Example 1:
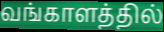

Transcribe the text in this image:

வங்காளத்தில்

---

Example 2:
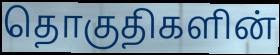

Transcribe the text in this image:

தொகுதிகளின்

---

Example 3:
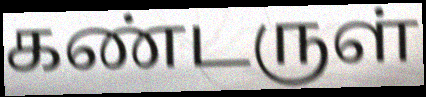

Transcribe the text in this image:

கண்டருள்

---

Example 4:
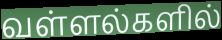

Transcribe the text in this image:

வள்ளல்களில்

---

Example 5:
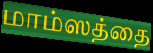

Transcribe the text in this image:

மாம்ஸத்தை